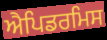
ਐਪਿਡਰਮਿਸ